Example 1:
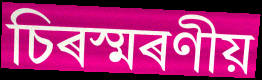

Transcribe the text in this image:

চিৰস্মৰণীয়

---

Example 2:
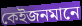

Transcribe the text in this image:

কেইজনমানে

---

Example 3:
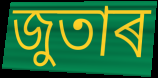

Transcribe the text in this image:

জুতাৰ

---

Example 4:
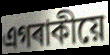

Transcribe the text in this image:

এগৰাকীয়ে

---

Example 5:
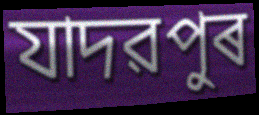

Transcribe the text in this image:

যাদৱপুৰ